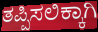
ತಪ್ಪಿಸಲಿಕ್ಕಾಗಿ